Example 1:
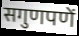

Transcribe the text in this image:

सगुणपणें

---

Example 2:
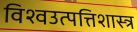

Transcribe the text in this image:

विश्वउत्पत्तिशास्त्र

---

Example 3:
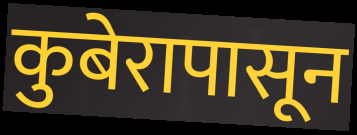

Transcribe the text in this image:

कुबेरापासून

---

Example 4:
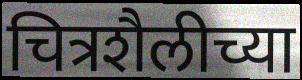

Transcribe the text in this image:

चित्रशैलीच्या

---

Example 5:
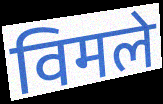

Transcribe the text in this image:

विमले